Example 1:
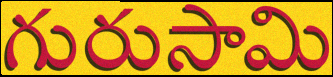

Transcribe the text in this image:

గురుసామి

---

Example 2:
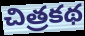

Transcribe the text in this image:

చిత్రకథ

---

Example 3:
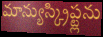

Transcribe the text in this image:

మాన్యుస్క్రిప్ట్లను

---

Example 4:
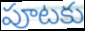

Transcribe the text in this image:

పూటకు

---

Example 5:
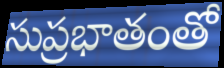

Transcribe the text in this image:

సుప్రభాతంతో